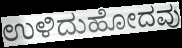
ಉಳಿದುಹೋದವು